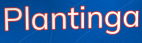
Plantinga